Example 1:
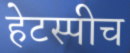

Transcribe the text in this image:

हेटस्पीच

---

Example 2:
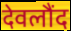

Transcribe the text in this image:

देवलौंद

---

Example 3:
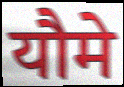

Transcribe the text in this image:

यौमे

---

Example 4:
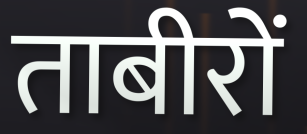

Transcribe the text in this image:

ताबीरों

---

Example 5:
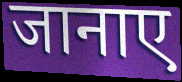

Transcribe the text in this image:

जानाए